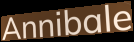
Annibale